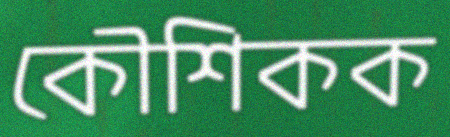
কৌশিকক